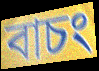
বাচং